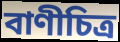
বাণীচিত্র